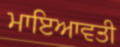
ਮਾਇਆਵਤੀ